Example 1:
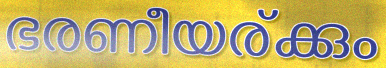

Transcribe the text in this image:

ഭരണീയര്ക്കും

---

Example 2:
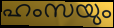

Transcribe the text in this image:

ഹംസയും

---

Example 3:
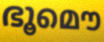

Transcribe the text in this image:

ഭൂമൌ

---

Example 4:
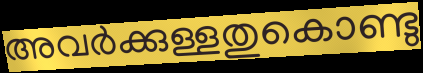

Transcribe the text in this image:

അവർക്കുള്ളതുകൊണ്ടു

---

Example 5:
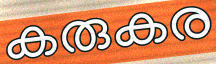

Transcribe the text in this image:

കരുകര